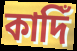
কাদিঁ